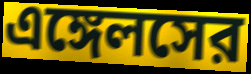
এঙ্গেলসের